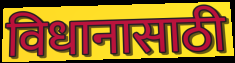
विधानासाठी